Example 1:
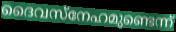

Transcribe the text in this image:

ദൈവസ്നേഹമുണ്ടെന്ന്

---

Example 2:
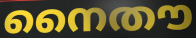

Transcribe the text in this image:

നൈതൗ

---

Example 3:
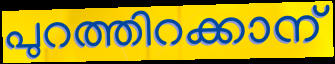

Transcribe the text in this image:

പുറത്തിറക്കാന്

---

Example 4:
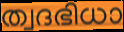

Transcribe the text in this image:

ത്വദഭിധാ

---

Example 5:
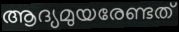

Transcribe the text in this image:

ആദ്യമുയരേണ്ടത്